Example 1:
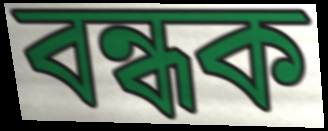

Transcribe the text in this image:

বন্ধক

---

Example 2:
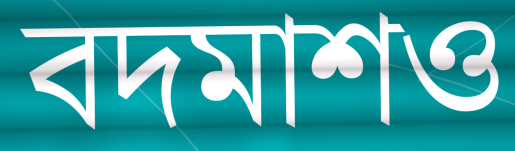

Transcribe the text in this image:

বদমাশও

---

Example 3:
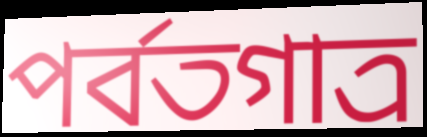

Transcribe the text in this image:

পর্বতগাত্র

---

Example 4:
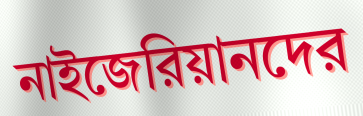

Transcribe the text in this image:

নাইজেরিয়ানদের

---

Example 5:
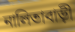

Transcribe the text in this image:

নালিতাবাড়ী